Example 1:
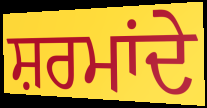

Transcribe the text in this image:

ਸ਼ਰਮਾਂਦੇ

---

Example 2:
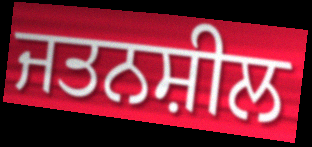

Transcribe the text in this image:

ਜਤਨਸ਼ੀਲ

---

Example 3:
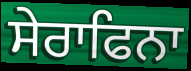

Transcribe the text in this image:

ਸੇਰਾਫਿਨਾ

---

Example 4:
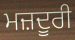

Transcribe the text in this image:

ਮਜ਼ਦੂਰੀ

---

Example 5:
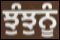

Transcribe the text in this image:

ਝੁੰਝੁਨੂੰ